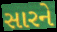
સારને